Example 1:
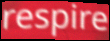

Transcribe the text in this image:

respire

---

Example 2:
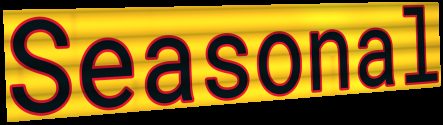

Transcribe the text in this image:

Seasonal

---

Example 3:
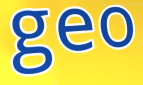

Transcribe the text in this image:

geo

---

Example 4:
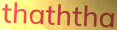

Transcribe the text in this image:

thaththa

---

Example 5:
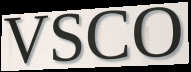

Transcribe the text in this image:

VSCO